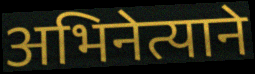
अभिनेत्याने